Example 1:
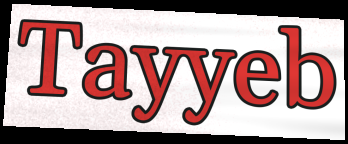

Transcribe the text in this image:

Tayyeb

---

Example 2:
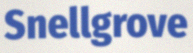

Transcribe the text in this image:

Snellgrove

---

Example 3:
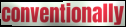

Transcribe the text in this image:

conventionally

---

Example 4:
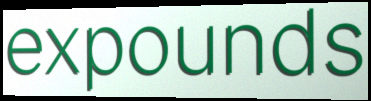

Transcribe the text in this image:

expounds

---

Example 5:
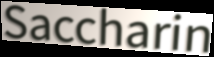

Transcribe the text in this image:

Saccharin